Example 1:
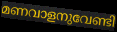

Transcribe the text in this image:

മണവാളനുവേണ്ടി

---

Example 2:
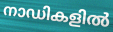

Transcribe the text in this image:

നാഡികളിൽ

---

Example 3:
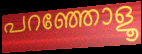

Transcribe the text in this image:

പറഞ്ഞോളൂ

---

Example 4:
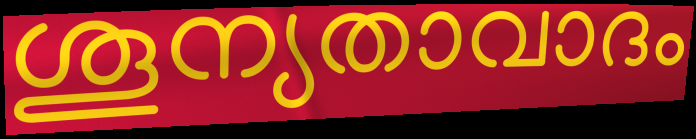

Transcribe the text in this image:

ശൂന്യതാവാദം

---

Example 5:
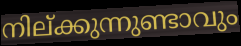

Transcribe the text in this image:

നില്ക്കുന്നുണ്ടാവും